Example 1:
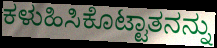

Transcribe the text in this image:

ಕಳುಹಿಸಿಕೊಟ್ಟಾತನನ್ನು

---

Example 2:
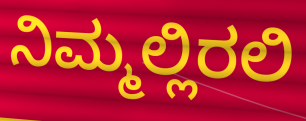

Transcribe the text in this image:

ನಿಮ್ಮಲ್ಲಿರಲಿ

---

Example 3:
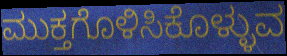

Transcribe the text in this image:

ಮುಕ್ತಗೊಳಿಸಿಕೊಳ್ಳುವ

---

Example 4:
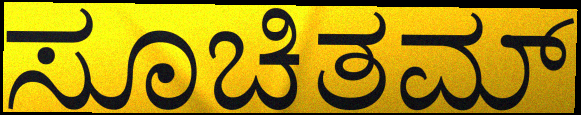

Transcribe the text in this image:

ಸೂಚಿತಮ್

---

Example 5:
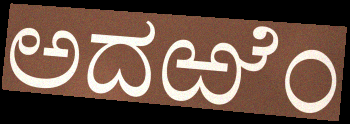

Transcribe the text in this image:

ಅದಱೆಂ